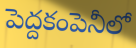
పెద్దకంపెనీలో